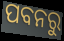
ପବନରୁ